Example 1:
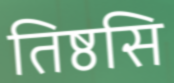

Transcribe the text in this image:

तिष्ठसि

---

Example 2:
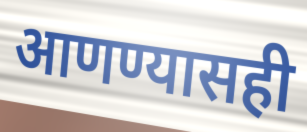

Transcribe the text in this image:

आणण्यासही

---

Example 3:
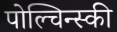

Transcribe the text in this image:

पोल्चिन्स्की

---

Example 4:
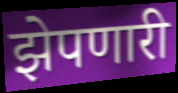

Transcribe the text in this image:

झेपणारी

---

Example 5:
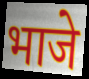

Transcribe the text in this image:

भाजे